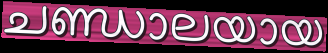
ചണ്ഡാലയായ